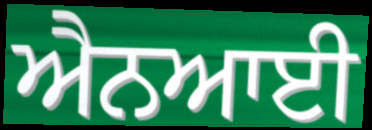
ਐਨਆਈ